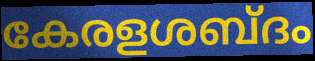
കേരളശബ്ദം